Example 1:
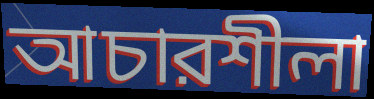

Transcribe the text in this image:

আচারশীলা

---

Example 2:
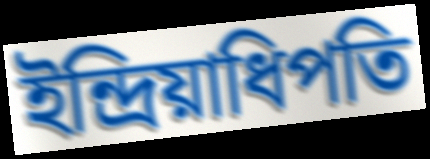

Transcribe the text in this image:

ইন্দ্রিয়াধিপতি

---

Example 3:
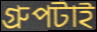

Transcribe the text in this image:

গ্রুপটাই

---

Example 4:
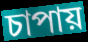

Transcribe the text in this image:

চাপায়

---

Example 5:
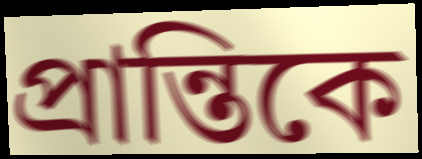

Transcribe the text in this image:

প্রান্তিকে